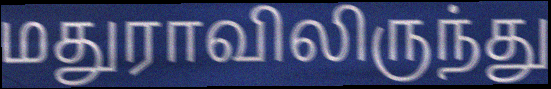
மதுராவிலிருந்து